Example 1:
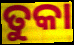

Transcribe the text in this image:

ତୁକା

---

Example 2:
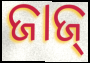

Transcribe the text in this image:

ଜାଜ୍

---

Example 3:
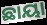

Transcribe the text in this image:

ଛାୟା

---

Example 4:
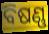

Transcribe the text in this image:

ବିଷଣ୍ଣ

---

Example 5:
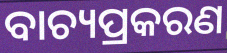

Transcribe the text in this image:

ବାଚ୍ୟପ୍ରକରଣ